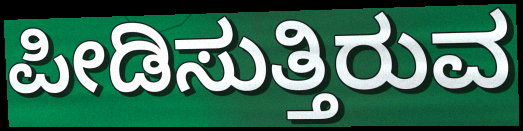
ಪೀಡಿಸುತ್ತಿರುವ